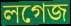
লগেজ